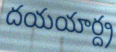
దయయార్ద్ర